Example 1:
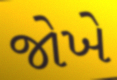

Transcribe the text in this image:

જોખે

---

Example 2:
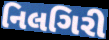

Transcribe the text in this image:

નિલગિરી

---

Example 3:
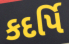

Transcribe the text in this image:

કદર્પિ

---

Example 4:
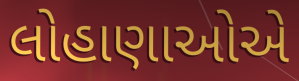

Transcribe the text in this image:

લોહાણાઓએ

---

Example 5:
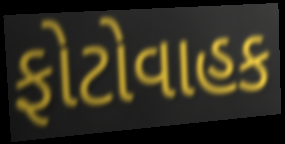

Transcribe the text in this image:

ફોટોવાહક